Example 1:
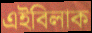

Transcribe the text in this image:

এইবিলাক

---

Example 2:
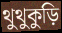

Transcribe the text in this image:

থুথুকুড়ি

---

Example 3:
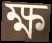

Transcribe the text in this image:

ক্ষ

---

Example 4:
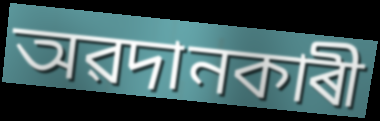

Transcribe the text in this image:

অৱদানকাৰী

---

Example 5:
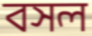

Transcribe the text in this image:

বসল